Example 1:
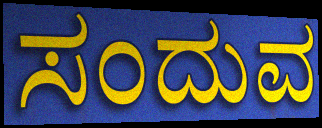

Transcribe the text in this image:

ಸಂದುವ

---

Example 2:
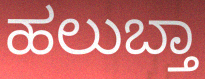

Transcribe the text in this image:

ಹಲುಬ್ತಾ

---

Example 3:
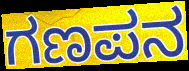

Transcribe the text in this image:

ಗಣಪನ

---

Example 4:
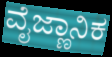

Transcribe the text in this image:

ವೈಜ್ಣಾನಿಕ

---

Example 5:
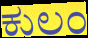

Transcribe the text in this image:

ಕುಲಂ